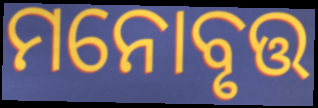
ମନୋବୃତ୍ତ